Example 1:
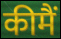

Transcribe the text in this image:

कीमैं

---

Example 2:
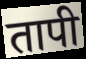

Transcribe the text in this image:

तापी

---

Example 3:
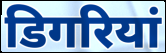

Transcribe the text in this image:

डिगरियां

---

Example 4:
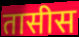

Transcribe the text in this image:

तासीस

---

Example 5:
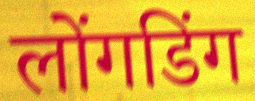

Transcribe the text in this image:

लोंगडिंग